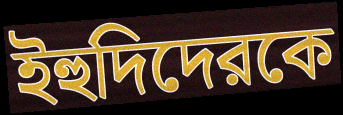
ইহুদিদেরকে